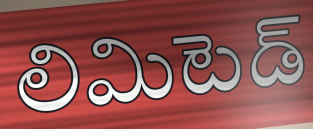
లిమిటెడ్